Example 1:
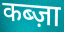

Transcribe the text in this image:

कब्ज़ा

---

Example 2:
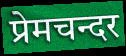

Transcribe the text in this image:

प्रेमचन्दर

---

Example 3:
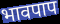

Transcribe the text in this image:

भावपाप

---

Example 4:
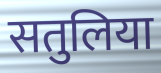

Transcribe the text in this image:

सतुलिया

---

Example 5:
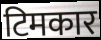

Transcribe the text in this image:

टिमकार